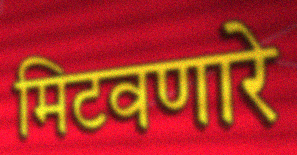
मिटवणारे